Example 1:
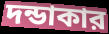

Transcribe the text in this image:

দন্ডাকার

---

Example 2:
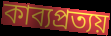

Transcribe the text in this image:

কাব্যপ্রত্যয়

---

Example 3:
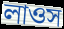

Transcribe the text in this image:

লাওস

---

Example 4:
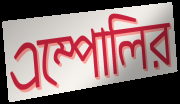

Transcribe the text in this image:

এম্পোলির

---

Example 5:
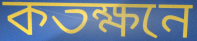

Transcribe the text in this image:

কতক্ষনে